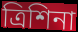
ত্রিশিনা